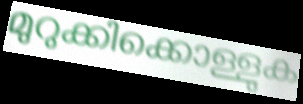
മുറുക്കിക്കൊള്ളുക